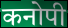
कनोपी